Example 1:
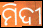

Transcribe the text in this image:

ମିଦୀ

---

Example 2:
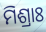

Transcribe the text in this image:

ମିଶ୍ରାଃ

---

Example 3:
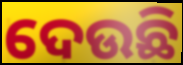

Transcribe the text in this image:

ଦେଉଛି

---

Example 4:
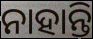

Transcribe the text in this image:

ନାହାନ୍ତି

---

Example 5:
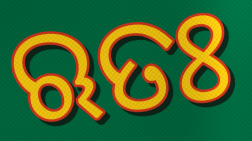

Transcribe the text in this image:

ଋତଃ